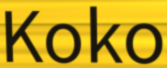
Koko